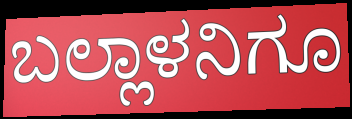
ಬಲ್ಲಾಳನಿಗೂ